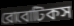
রোবোটিকস